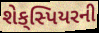
શેક્‌સ્પિયરની